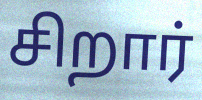
சிறார்